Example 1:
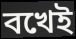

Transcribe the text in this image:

বখেই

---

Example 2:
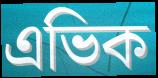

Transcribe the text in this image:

এভিক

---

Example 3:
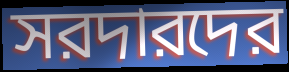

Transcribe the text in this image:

সরদারদের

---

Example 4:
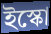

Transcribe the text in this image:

ইস্কো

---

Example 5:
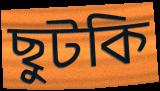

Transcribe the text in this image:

ছুটকি